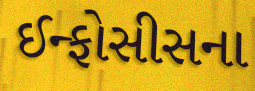
ઈન્ફોસીસના